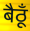
बैठूँ